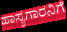
ಹಾಸ್ಯಗಾರನಿಗೆ